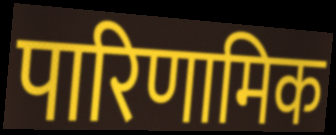
पारिणामिक